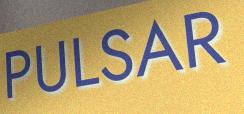
PULSAR